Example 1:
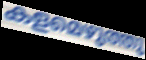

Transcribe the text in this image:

കളമെഴുത്തു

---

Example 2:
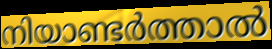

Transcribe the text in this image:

നിയാണ്ടർത്താൽ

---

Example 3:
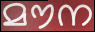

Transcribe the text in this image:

മൗന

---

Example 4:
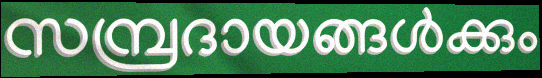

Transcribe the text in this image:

സമ്പ്രദായങ്ങൾക്കും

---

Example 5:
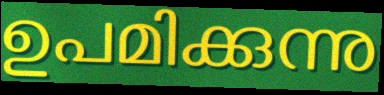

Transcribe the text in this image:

ഉപമിക്കുന്നു